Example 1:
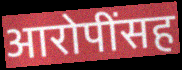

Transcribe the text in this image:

आरोपींसह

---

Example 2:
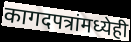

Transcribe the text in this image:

कागदपत्रांमध्येही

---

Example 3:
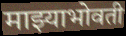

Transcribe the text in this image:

माझ्याभोवती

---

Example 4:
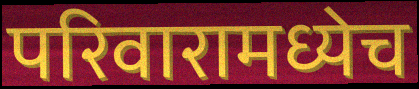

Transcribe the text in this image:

परिवारामध्येच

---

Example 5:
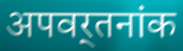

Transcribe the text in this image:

अपवर्तनांक